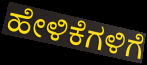
ಹೇಳಿಕೆಗಳಿಗೆ